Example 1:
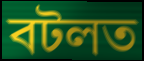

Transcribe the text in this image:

বটলত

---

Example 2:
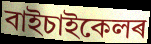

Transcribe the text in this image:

বাইচাইকেলৰ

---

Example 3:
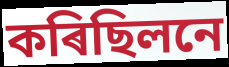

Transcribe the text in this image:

কৰিছিলনে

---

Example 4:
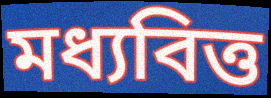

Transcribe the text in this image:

মধ্যবিত্ত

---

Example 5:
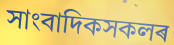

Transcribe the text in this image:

সাংবাদিকসকলৰ